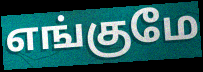
எங்குமே